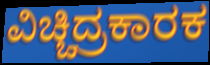
ವಿಚ್ಚಿದ್ರಕಾರಕ